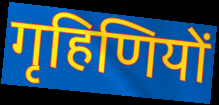
गृहिणियों